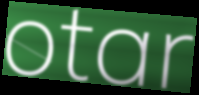
otar